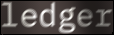
ledger